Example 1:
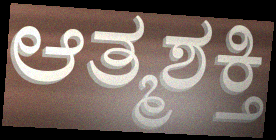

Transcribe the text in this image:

ಆತ್ಮಶಕ್ತಿ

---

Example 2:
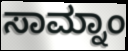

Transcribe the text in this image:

ಸಾಮ್ನಾಂ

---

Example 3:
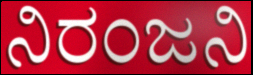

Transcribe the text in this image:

ನಿರಂಜನಿ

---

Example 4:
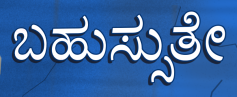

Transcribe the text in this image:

ಬಹುಸ್ಸುತೇ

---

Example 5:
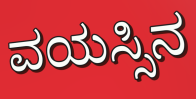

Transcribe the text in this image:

ವಯಸ್ಸಿನ